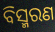
ବିସ୍ମରଣ